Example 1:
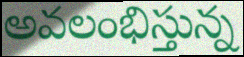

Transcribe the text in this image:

అవలంభిస్తున్న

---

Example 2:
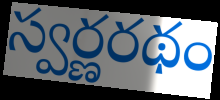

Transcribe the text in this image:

స్వర్ణరథం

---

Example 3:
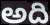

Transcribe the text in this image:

అది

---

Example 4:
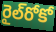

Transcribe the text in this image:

రైల్‌రోకో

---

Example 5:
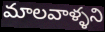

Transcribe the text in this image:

మాలవాళ్ళని